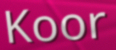
Koor